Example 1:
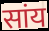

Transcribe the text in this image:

सांय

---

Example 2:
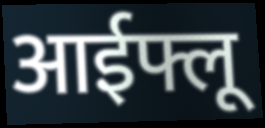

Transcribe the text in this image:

आईफ्लू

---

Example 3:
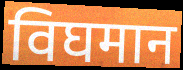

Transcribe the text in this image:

विघमान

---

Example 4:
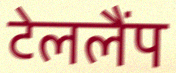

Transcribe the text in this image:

टेललैंप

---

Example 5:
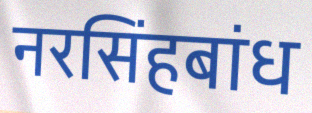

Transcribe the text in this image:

नरसिंहबांध